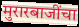
मुरारबाजींचा